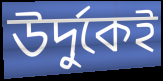
উর্দুকেই